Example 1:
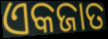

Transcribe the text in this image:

ଏକଜାତ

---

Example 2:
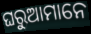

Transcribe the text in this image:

ଘରୁଆମାନେ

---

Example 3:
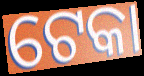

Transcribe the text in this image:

ଟେକା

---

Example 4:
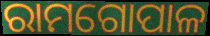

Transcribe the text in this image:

ରାମଗୋପାଳ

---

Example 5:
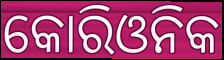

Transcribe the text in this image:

କୋରିଓନିକ